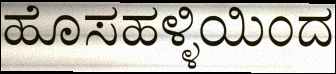
ಹೊಸಹಳ್ಳಿಯಿಂದ